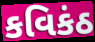
કવિકંઠ